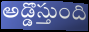
అడ్డొస్తుంది